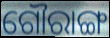
ଗୌରାଙ୍ଗ